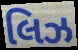
લિઝ